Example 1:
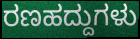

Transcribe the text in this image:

ರಣಹದ್ದುಗಳು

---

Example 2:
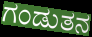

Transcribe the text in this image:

ಗಂಡುತನ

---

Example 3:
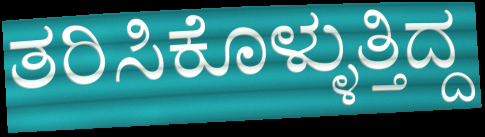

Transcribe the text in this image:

ತರಿಸಿಕೊಳ್ಳುತ್ತಿದ್ದ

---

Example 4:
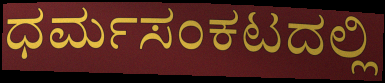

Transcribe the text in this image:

ಧರ್ಮಸಂಕಟದಲ್ಲಿ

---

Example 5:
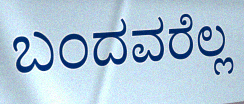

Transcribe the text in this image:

ಬಂದವರೆಲ್ಲ